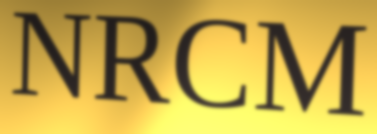
NRCM